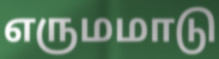
எருமமாடு